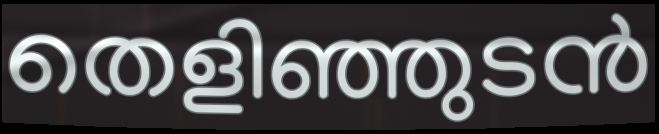
തെളിഞ്ഞുടൻ